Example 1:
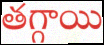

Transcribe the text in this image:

తగ్గాయి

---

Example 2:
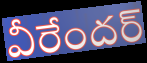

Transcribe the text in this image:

వీరేందర్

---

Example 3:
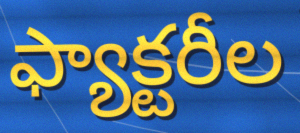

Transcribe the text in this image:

ఫ్యాక్టరీల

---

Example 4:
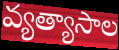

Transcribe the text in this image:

వ్యత్యాసాల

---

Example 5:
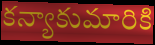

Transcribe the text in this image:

కన్యాకుమారికి